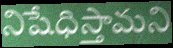
నిషేధిస్తామని